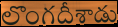
లొంగదీశాడు